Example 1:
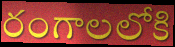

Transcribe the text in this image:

రంగాలలోకి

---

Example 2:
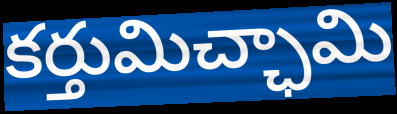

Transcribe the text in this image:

కర్తుమిచ్ఛామి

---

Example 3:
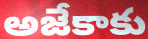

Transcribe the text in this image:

అజేకాకు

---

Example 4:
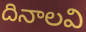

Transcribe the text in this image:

దినాలవి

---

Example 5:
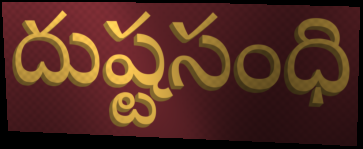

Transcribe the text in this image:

దుష్టసంధి